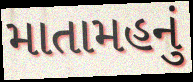
માતામહનું